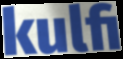
kulfi